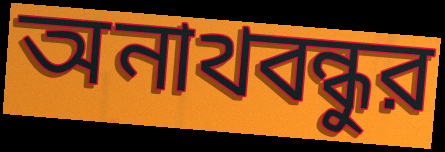
অনাথবন্ধুর